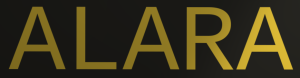
ALARA